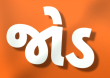
જોડ